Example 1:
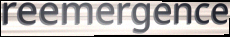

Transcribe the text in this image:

reemergence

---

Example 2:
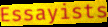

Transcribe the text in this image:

Essayists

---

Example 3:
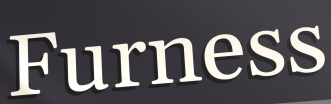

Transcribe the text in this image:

Furness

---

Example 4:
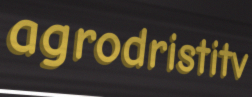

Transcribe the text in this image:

agrodristitv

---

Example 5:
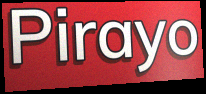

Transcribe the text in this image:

Pirayo